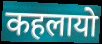
कहलायो